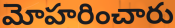
మోహరించారు